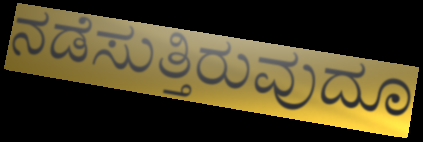
ನಡೆಸುತ್ತಿರುವುದೂ